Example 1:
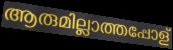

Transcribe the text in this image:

ആരുമില്ലാത്തപ്പോള്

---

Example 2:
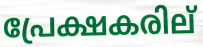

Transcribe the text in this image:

പ്രേക്ഷകരില്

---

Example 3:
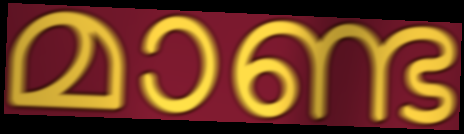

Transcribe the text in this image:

മാണ്ട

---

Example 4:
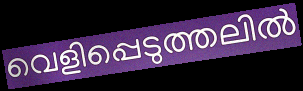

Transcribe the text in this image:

വെളിപ്പെടുത്തലിൽ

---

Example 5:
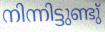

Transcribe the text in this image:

നിന്നിട്ടുണ്ടു്